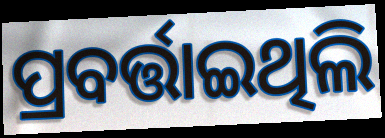
ପ୍ରବର୍ତ୍ତାଇଥିଲି